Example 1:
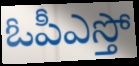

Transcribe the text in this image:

ఓపీఎస్తో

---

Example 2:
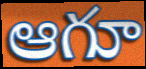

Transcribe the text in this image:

ఆగూ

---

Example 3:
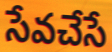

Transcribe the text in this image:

సేవచేసే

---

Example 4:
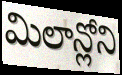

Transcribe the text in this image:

మిలాన్లోని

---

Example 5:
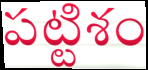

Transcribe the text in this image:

పట్టిశం